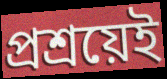
প্রশ্রয়েই